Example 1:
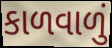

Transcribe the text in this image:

કાળવાળું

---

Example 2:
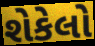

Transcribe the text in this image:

શેકેલો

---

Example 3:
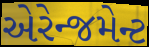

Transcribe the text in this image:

એરેન્જમેન્ટ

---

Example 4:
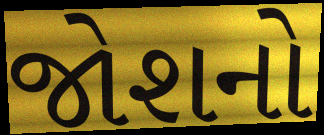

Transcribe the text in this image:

જોશનો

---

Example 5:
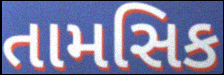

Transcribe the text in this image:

તામસિક